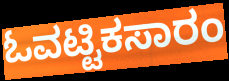
ಓವಟ್ಟಿಕಸಾರಂ